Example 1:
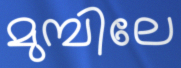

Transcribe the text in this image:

മുമ്പിലേ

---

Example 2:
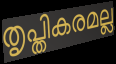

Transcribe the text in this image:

തൃപ്തികരമല്ല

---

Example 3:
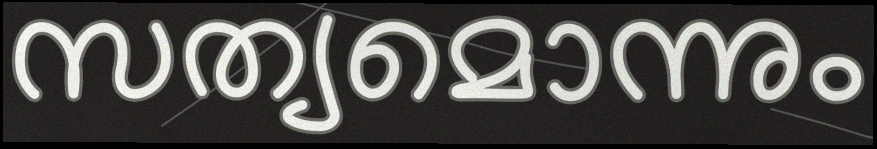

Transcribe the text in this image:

സത്യമൊന്നും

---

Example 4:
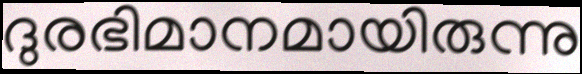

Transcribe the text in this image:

ദുരഭിമാനമായിരുന്നു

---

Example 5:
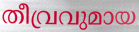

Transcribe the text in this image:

തീവ്രവുമായ